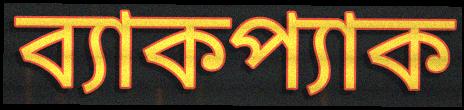
ব্যাকপ্যাক